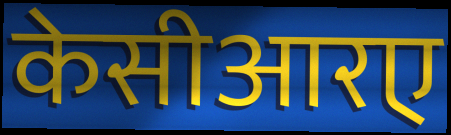
केसीआरए